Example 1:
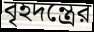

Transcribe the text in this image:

বৃহদন্ত্রের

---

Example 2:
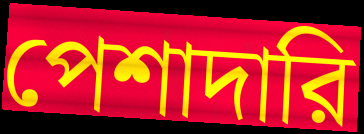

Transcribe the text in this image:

পেশাদারি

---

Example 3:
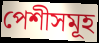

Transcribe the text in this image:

পেশীসমূহ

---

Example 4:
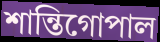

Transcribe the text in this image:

শান্তিগোপাল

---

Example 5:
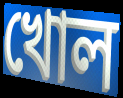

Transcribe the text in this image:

খোল